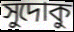
সুদোকু